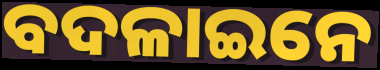
ବଦଳାଇନେ